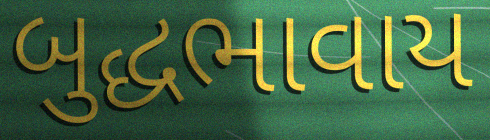
બુદ્ધભાવાય